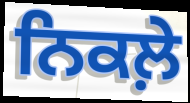
ਨਿਕਲ਼ੇ